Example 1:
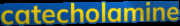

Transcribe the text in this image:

catecholamine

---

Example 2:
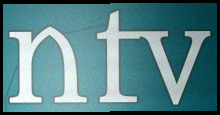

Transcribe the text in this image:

ntv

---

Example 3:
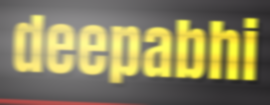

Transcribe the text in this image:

deepabhi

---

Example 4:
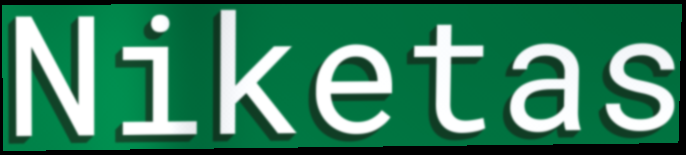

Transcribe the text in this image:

Niketas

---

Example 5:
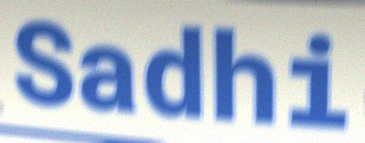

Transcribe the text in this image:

Sadhi